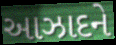
આઝાદને